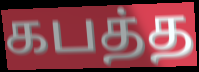
கபத்த